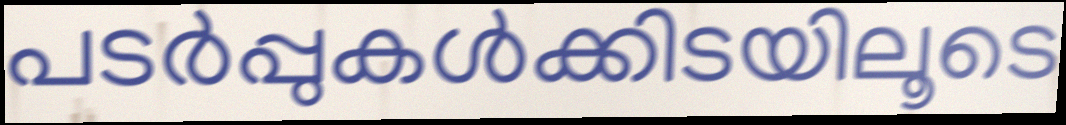
പടർപ്പുകൾക്കിടയിലൂടെ